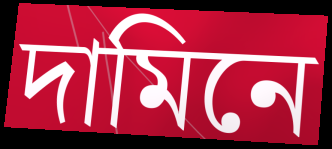
দামিনে